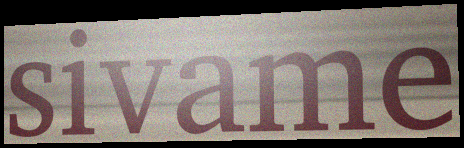
sivame